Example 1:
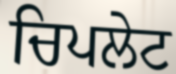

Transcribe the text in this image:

ਚਿਪਲੇਟ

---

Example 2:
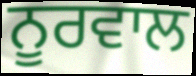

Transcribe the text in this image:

ਨੂਰਵਾਲ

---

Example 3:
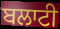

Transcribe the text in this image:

ਬਲਾਟੀ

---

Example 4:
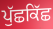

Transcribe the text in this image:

ਪੁੱਛਕਿੱਛ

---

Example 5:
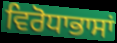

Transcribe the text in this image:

ਵਿਰੋਧਾਭਾਸਾਂ